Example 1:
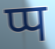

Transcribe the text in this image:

प्प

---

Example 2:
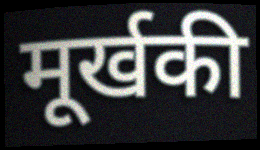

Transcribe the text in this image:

मूर्खकी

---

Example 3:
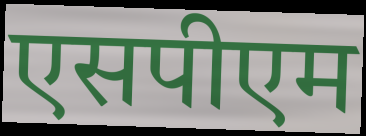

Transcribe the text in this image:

एसपीएम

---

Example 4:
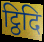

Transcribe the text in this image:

ट्ठिदि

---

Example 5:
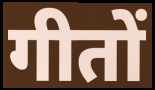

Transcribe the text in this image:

गीतों